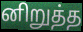
னிறுத்த